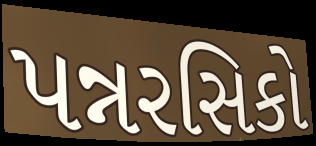
પન્નરસિકો